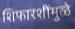
शिफारशींमुळे